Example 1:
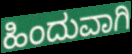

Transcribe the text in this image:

ಹಿಂದುವಾಗಿ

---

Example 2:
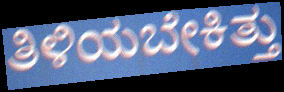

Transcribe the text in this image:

ತಿಳಿಯಬೇಕಿತ್ತು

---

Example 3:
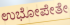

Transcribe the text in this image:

ಉಭೋಪೇತೇ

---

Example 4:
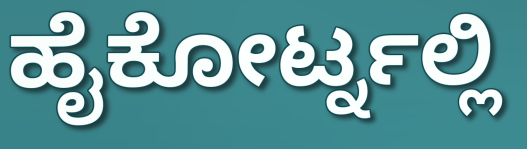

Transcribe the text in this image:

ಹೈಕೋರ್ಟ್ನಲ್ಲಿ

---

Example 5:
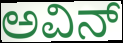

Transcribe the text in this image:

ಅವಿನ್